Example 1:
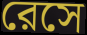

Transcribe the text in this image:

রেসে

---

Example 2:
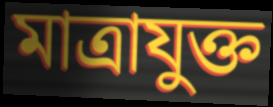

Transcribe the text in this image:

মাত্রাযুক্ত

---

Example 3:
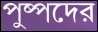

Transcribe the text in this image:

পুষ্পদের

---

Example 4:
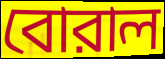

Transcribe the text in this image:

বোরাল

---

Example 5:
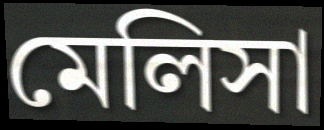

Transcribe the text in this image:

মেলিসা